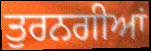
ਤੁਰਨਗੀਆਂ